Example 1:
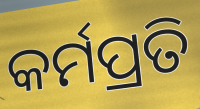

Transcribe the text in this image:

କର୍ମପ୍ରତି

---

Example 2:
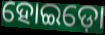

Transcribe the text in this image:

ହୋଇଡ଼ୋ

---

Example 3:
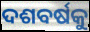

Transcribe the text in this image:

ଦଶବର୍ଷକୁ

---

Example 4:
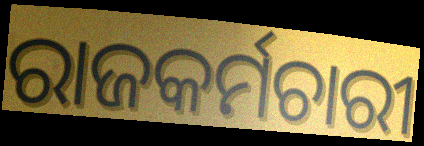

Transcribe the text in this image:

ରାଜକର୍ମଚାରୀ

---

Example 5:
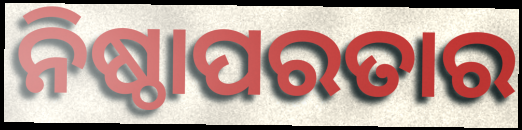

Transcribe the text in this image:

ନିଷ୍ଠାପରତାର